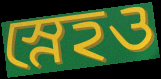
স্নেহও